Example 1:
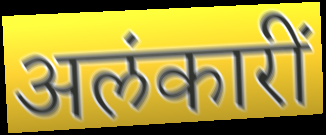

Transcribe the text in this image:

अलंकारीं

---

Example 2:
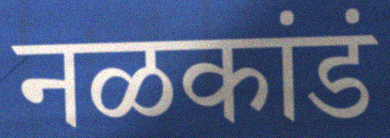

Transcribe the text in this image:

नळकांडं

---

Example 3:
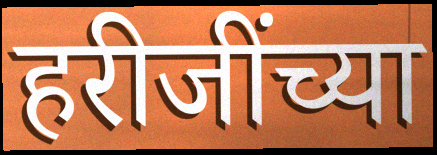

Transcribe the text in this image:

हरीजींच्या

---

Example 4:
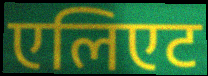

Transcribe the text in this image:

एलिएट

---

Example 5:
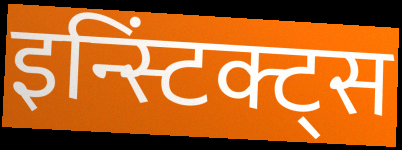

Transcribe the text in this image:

इन्स्टिंक्ट्स